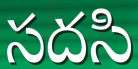
సదసి